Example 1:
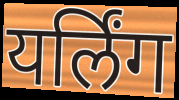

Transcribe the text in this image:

यर्लिंग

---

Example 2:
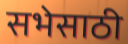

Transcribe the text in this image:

सभेसाठी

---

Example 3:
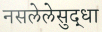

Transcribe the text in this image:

नसलेलेसुद्धा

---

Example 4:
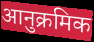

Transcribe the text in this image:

आनुक्रमिक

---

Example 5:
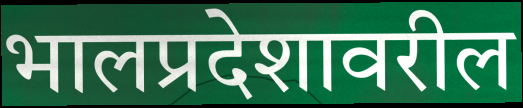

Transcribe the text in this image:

भालप्रदेशावरील